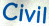
Civil